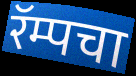
रॅम्पचा